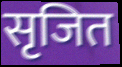
सृजित